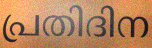
പ്രതിദിന